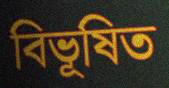
বিভূষিত